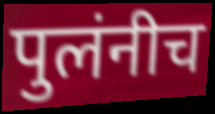
पुलंनीच